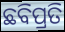
ଛବିପ୍ରତି